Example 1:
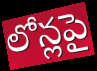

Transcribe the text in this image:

లోన్లపై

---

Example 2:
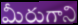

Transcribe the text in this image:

మీరుగాని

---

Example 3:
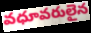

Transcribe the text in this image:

వధూవరులైన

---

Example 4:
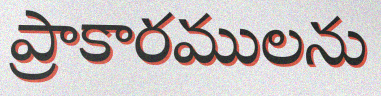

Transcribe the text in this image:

ప్రాకారములను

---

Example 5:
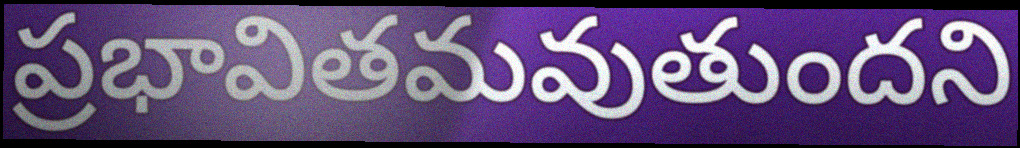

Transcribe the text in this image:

ప్రభావితమవుతుందని